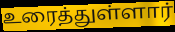
உரைத்துள்ளார்